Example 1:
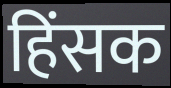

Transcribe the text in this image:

हिंसक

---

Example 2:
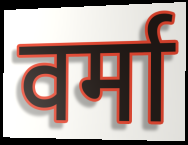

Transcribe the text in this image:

वर्मा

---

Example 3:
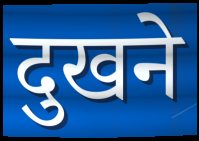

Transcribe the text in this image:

दुखने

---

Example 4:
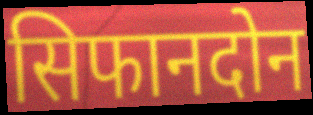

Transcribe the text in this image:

सिफानदोन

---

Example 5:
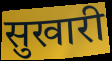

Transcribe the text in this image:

सुखारी